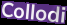
Collodi